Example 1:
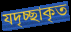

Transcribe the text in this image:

যদৃচ্ছাকৃত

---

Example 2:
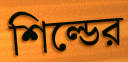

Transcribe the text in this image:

শিল্ডের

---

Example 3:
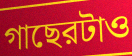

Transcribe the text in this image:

গাছেরটাও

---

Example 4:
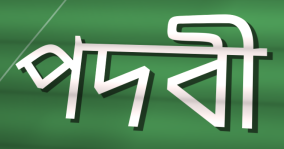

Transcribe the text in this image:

পদবী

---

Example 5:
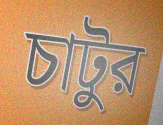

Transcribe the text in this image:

চাটুর